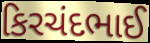
કિરચંદભાઈ